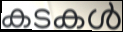
കടകൾ